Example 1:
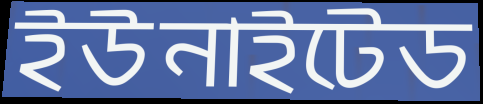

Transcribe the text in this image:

ইউনাইটেড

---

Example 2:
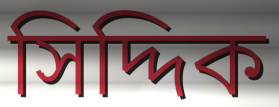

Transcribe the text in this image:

সিদ্দিক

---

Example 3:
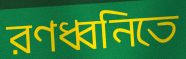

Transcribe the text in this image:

রণধ্বনিতে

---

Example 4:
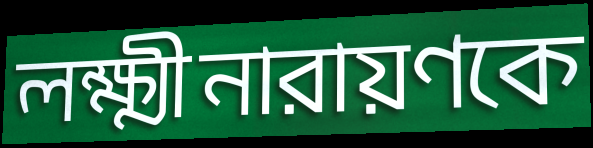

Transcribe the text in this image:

লক্ষ্মীনারায়ণকে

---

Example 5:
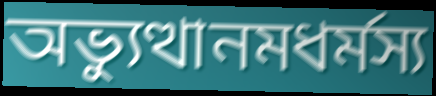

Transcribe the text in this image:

অভ্যুত্থানমধর্মস্য